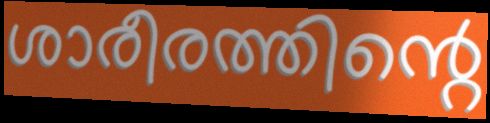
ശാരീരത്തിന്റെ